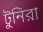
টুনিরা